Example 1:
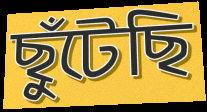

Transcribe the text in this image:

ছুঁটেছি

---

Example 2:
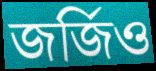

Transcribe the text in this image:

জর্জিও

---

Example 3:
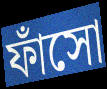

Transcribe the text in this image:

ফাঁসো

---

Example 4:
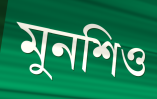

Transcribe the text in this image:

মুনশিও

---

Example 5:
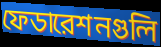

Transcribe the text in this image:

ফেডারেশনগুলি